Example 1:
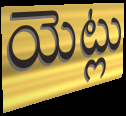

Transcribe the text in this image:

యెట్లు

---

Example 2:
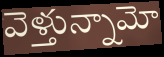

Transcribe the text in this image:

వెళ్తున్నామో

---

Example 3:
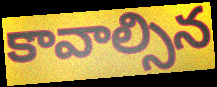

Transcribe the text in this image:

కావాల్సిన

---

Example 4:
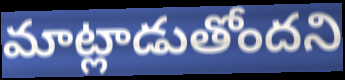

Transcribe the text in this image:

మాట్లాడుతోందని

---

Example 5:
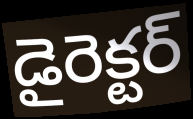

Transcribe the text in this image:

డైరెక్టర్